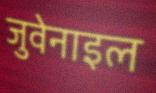
जुवेनाइल